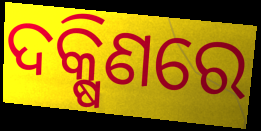
ଦକ୍ଷିଣରେ